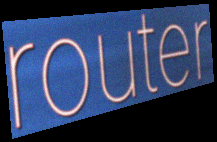
router